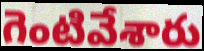
గెంటివేశారు